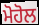
ਮੋਹੋਲ